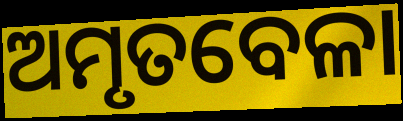
ଅମୃତବେଳା